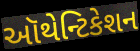
ઑથેન્ટિકેશન